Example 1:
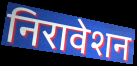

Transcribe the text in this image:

निरावेशन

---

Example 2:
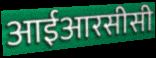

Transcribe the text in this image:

आईआरसीसी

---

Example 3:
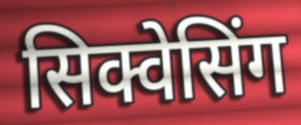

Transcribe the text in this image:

सिक्वेसिंग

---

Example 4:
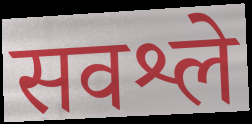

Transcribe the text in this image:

सवश्ले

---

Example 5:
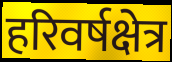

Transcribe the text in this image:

हरिवर्षक्षेत्र